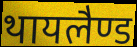
थायलैण्ड